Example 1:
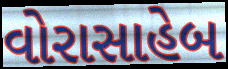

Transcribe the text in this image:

વોરાસાહેબ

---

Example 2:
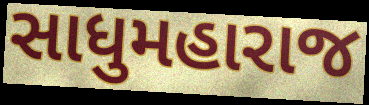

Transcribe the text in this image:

સાધુમહારાજ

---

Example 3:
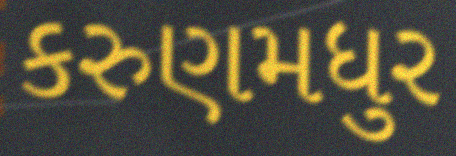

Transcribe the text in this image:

કરુણમધુર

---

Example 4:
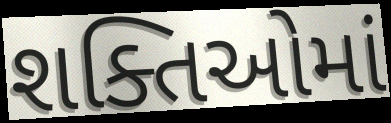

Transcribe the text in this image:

શક્તિઓમાં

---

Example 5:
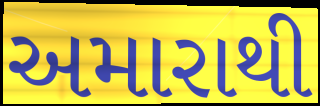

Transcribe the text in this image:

અમારાથી